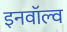
इनवॉल्व